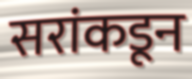
सरांकडून